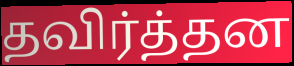
தவிர்த்தன